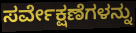
ಸರ್ವೇಕ್ಷಣೆಗಳನ್ನು